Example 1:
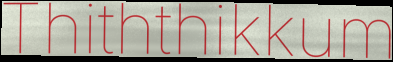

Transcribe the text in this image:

Thiththikkum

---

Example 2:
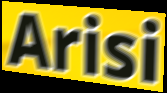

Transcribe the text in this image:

Arisi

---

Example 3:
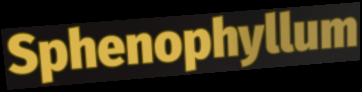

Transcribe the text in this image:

Sphenophyllum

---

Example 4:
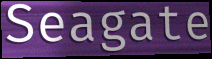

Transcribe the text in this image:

Seagate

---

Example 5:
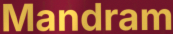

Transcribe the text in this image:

Mandram